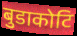
बुडाकोटि